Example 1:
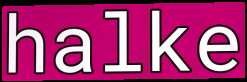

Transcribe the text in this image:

halke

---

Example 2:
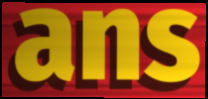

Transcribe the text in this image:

ans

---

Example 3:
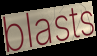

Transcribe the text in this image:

blasts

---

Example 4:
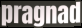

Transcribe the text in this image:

pragnad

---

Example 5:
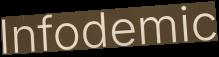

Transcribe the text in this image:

Infodemic